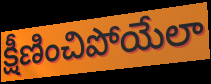
క్షీణించిపోయేలా